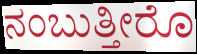
ನಂಬುತ್ತೀರೊ